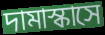
দামাস্কাসে